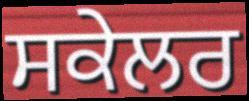
ਸਕੇਲਰ